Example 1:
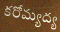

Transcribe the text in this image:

కరోమ్యద్య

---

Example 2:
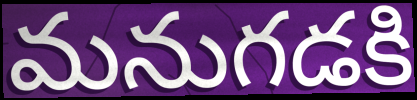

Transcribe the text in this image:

మనుగడకి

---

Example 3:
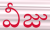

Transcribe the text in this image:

వీజు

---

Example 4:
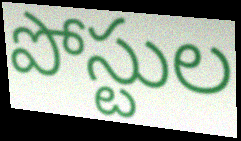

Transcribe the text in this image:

పోస్టుల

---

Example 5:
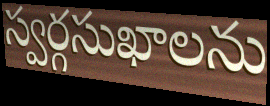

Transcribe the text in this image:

స్వర్గసుఖాలను